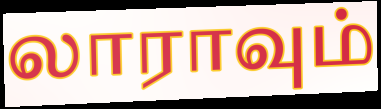
லாராவும்